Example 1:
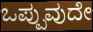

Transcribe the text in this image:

ಒಪ್ಪುವುದೇ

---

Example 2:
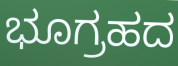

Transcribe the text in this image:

ಭೂಗ್ರಹದ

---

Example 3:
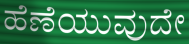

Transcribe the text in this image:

ಹೆಣೆಯುವುದೇ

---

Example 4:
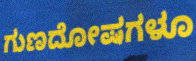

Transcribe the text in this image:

ಗುಣದೋಷಗಳೂ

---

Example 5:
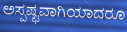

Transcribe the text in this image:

ಅಸ್ಪಷ್ಟವಾಗಿಯಾದರೂ